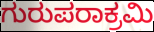
ಗುರುಪರಾಕ್ರಮಿ